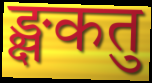
ङ्क्षकतु